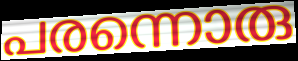
പരന്നൊരു